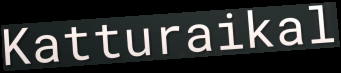
Katturaikal